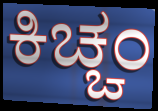
ಕಿಚ್ಚಂ